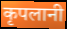
कृपलानी